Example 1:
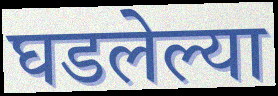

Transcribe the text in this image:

घडलेल्या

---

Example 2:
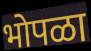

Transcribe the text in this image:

भोपळा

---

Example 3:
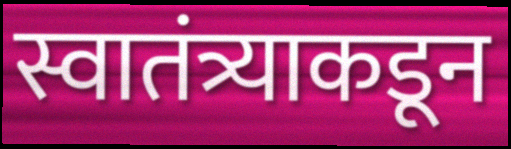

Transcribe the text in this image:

स्वातंत्र्याकडून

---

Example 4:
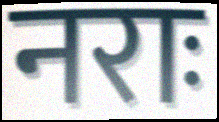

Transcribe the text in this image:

नराः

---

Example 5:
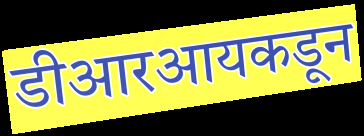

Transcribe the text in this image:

डीआरआयकडून